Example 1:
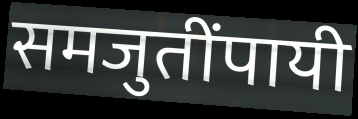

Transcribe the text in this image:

समजुतींपायी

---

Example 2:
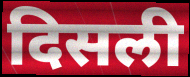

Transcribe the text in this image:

दिसली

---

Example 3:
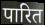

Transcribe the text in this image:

पारित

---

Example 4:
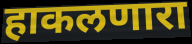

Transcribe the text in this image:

हाकलणारा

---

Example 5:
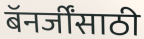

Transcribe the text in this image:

बॅनर्जींसाठी